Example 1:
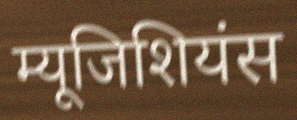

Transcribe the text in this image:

म्यूजिशियंस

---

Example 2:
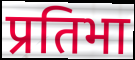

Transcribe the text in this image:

प्रतिभा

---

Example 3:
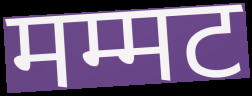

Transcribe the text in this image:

मम्मट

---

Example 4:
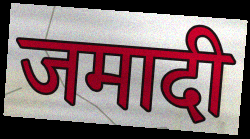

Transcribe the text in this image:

जमादी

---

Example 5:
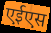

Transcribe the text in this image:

एईएस